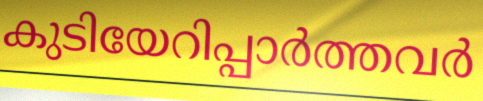
കുടിയേറിപ്പാർത്തവർ